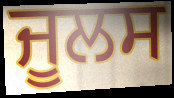
ਜੂਲਸ